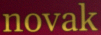
novak